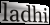
ladhi